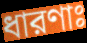
ধারণাঃ